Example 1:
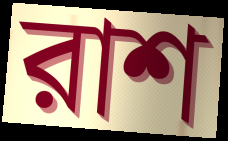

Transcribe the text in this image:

রাশ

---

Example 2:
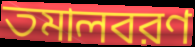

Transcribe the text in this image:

তমালবরণ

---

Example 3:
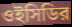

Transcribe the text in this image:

ওইসিডির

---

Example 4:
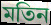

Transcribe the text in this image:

মতিন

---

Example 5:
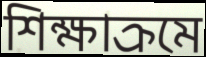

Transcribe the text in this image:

শিক্ষাক্রমে